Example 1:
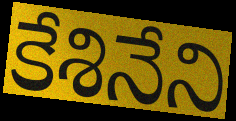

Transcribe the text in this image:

కేశినేని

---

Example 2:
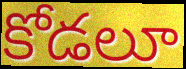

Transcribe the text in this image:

కోడలూ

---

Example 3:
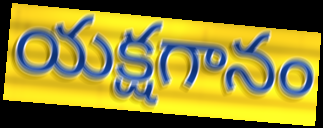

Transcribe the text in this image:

యక్షగానం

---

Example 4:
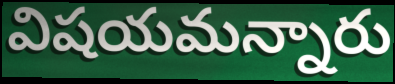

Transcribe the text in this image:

విషయమన్నారు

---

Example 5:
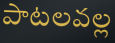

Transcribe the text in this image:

పాటలవల్ల